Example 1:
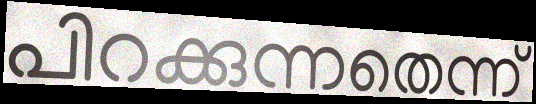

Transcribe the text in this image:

പിറക്കുന്നതെന്ന്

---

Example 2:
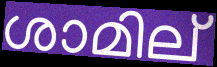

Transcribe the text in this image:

ശാമില്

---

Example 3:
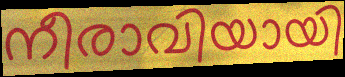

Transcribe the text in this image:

നീരാവിയായി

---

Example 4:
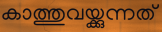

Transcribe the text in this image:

കാത്തുവയ്ക്കുന്നത്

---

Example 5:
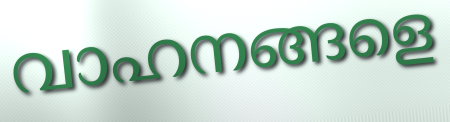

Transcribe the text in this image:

വാഹനങ്ങളെ